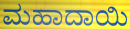
ಮಹಾದಾಯಿ